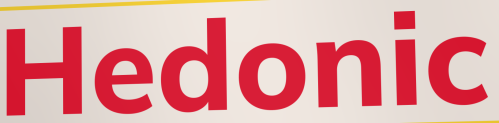
Hedonic